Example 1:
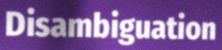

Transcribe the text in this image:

Disambiguation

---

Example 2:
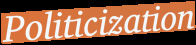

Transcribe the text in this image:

Politicization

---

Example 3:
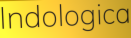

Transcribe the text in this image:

Indologica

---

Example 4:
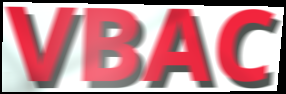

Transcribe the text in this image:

VBAC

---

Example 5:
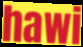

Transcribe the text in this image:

hawi